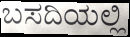
ಬಸದಿಯಲ್ಲಿ